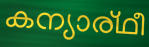
കന്യാര്ഥീ